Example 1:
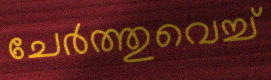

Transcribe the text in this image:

ചേർത്തുവെച്ച്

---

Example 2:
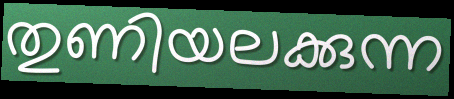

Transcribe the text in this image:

തുണിയലക്കുന്ന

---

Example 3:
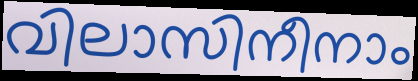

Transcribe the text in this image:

വിലാസിനീനാം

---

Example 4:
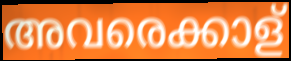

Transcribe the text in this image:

അവരെക്കാള്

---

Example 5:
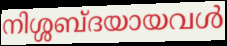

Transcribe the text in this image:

നിശ്ശബ്ദയായവൾ